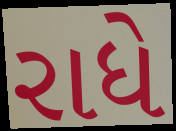
રાધે